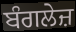
ਬੰਗਲੇਜ਼